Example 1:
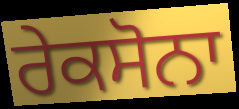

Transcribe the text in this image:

ਰੇਕਸੋਨਾ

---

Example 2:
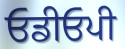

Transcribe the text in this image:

ਓਡੀਓਪੀ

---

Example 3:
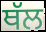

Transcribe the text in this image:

ਥੱਲ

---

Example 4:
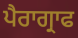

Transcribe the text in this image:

ਪੈਰਾਗ੍ਰਾਫ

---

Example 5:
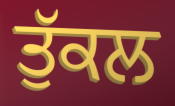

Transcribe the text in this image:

ਤੁੱਕਲ